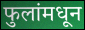
फुलांमधून